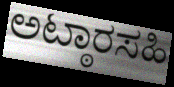
ಅಟ್ಠಾರಸಹಿ